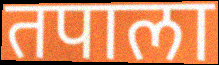
तपाला